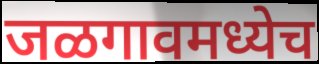
जळगावमध्येच